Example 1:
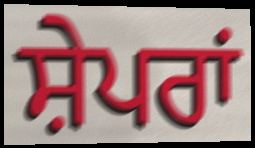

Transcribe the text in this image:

ਸ਼ੇਪਰਾਂ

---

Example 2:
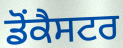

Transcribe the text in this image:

ਡੋਂਕੈਸਟਰ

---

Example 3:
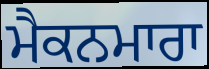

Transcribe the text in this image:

ਮੈਕਨਮਾਰਾ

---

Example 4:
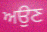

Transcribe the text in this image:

ਅਉਣ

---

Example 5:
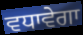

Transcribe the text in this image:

ਵਧਾਵੇਗਾ